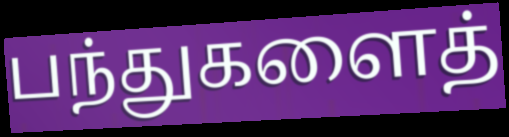
பந்துகளைத்